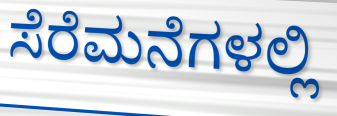
ಸೆರೆಮನೆಗಳಲ್ಲಿ